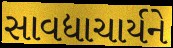
સાવદ્યાચાર્યને